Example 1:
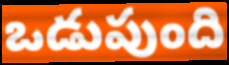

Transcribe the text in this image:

ఒడుపుంది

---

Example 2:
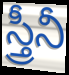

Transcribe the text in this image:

స్త్రీనీ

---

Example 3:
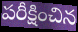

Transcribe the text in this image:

పరీక్షించిన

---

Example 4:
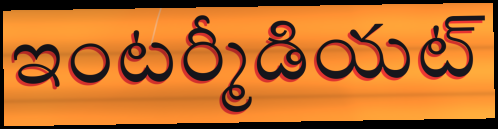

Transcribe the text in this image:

ఇంటర్మీడియట్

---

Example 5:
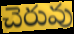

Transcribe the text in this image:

చెరువు